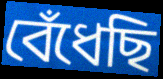
বেঁধেছি